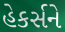
હેકર્સને